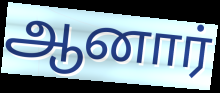
ஆனார்